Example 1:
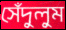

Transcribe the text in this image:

সেঁদুলুম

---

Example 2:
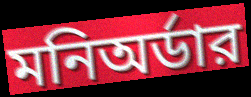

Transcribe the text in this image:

মনিঅর্ডার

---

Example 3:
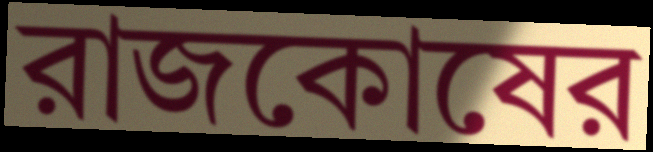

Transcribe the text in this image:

রাজকোষের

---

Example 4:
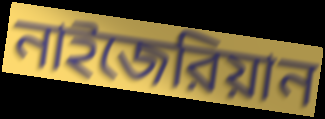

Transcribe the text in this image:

নাইজেরিয়ান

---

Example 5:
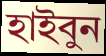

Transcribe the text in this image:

হাইবুন